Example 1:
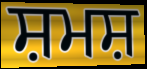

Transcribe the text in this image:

ਸ਼ਮਸ਼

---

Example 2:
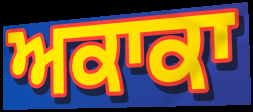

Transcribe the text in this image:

ਅਕਾਕਾ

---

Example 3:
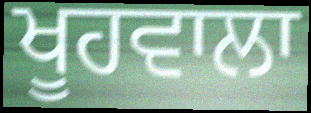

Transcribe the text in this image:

ਖੂਹਵਾਲਾ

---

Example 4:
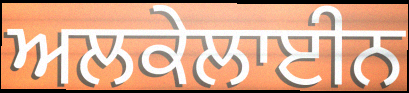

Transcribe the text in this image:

ਅਲਕੇਲਾਈਨ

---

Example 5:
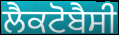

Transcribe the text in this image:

ਲੈਕਟੋਬੈਸੀ